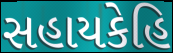
સહાયકેહિ